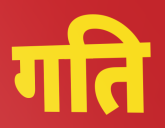
गति